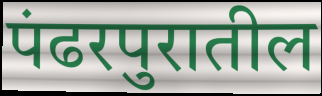
पंढरपुरातील